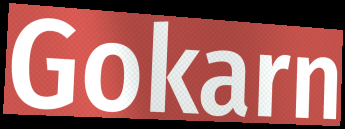
Gokarn